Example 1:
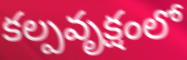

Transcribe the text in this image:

కల్పవృక్షంలో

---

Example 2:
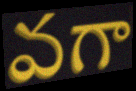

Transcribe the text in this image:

వగా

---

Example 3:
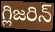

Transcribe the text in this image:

గ్లిజరిన్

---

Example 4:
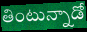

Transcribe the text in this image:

తింటున్నాడో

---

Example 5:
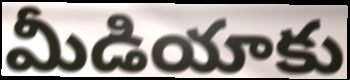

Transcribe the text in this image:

మీడియాకు